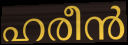
ഹരീൻ